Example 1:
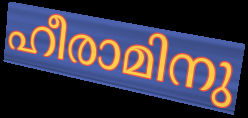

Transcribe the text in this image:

ഹീരാമിനു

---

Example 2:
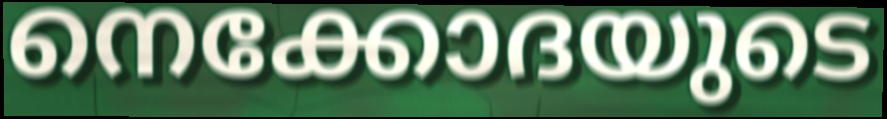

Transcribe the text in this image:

നെക്കോദയുടെ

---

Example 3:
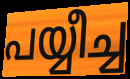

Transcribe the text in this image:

പയ്യീച്ച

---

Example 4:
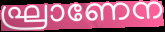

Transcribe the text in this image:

ഘ്രാണേന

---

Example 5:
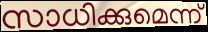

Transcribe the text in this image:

സാധിക്കുമെന്ന്